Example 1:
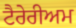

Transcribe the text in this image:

ਟੈਰੇਰੀਅਮ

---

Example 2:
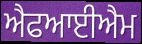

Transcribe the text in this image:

ਐਫਆਈਐਮ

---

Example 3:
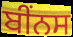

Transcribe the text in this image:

ਬੀਂਨਸ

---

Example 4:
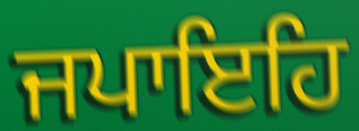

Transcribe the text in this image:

ਜਪਾਇਹਿ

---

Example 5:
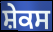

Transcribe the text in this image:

ਸ਼ੇਕਸ